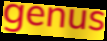
genus